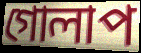
গোলাপ